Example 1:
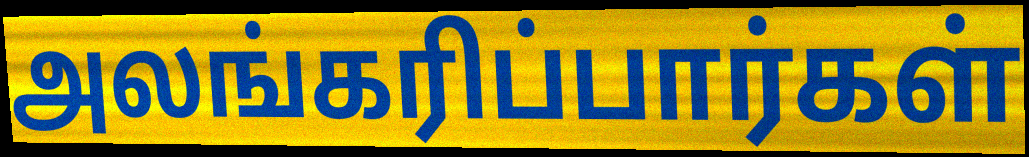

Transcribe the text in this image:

அலங்கரிப்பார்கள்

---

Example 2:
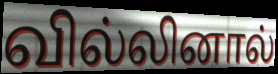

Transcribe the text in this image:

வில்லினால்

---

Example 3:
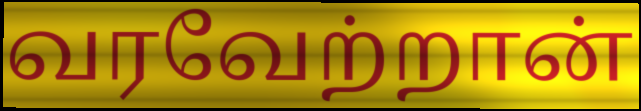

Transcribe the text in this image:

வரவேற்றான்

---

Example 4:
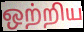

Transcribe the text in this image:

ஒற்றிய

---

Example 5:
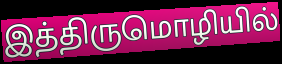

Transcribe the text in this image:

இத்திருமொழியில்